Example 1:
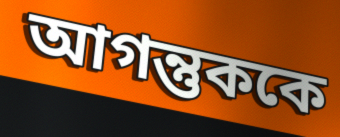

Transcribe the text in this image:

আগন্তুককে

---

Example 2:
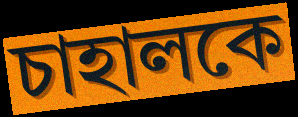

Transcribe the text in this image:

চাহালকে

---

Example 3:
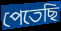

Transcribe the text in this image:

পেতেছি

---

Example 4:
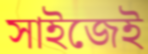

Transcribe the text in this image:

সাইজেই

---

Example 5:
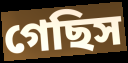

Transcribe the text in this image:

গেছিস